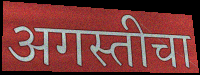
अगस्तीचा